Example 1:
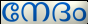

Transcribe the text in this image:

നേദം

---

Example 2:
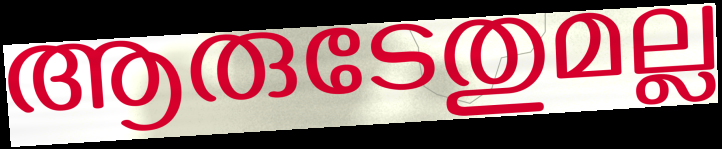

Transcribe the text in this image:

ആരുടേതുമല്ല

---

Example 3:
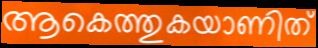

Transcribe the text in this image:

ആകെത്തുകയാണിത്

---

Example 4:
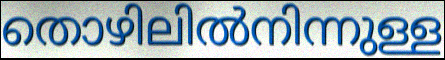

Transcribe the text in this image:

തൊഴിലിൽനിന്നുള്ള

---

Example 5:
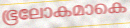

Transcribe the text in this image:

ഭൂലോകമാകെ